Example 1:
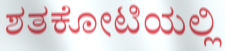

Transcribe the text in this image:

ಶತಕೋಟಿಯಲ್ಲಿ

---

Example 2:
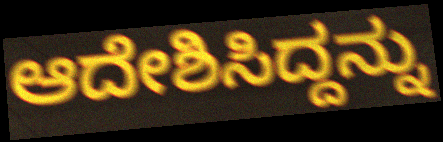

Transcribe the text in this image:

ಆದೇಶಿಸಿದ್ದನ್ನು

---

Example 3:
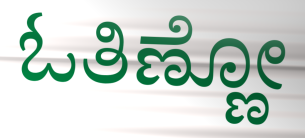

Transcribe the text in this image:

ಓತಿಣ್ಣೋ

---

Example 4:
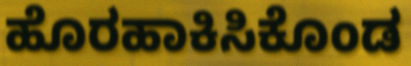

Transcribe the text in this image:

ಹೊರಹಾಕಿಸಿಕೊಂಡ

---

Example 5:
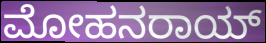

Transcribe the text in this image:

ಮೋಹನರಾಯ್